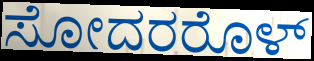
ಸೋದರರೊಳ್